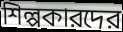
শিল্পকারদের